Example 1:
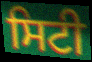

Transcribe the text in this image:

ਸਿਟੀ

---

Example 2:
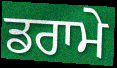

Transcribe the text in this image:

ਡਰਾਮੇ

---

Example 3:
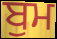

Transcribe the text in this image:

ਬੁਮ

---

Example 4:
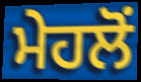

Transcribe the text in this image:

ਮੇਹਲੋਂ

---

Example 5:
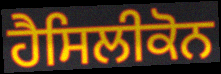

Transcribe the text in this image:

ਹੈਸਿਲੀਕੋਨ